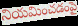
నియమించడంపై